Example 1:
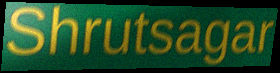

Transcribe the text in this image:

Shrutsagar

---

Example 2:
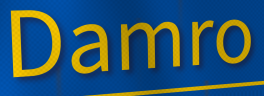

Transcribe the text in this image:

Damro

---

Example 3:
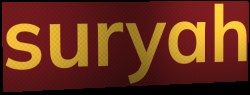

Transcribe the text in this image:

suryah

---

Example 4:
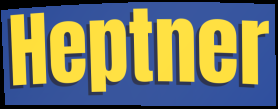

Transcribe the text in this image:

Heptner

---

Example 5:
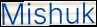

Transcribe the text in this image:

Mishuk